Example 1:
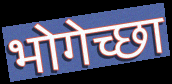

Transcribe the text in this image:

भोगेच्छा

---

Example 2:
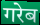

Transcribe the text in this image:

गरेब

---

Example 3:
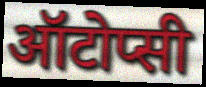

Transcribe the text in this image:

ऑटोप्सी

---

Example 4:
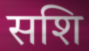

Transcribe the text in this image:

सशि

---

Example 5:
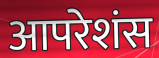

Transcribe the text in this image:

आपरेशंस